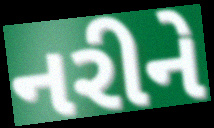
નરીને